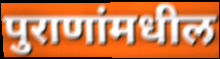
पुराणांमधील